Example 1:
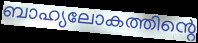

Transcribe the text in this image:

ബാഹ്യലോകത്തിന്റെ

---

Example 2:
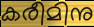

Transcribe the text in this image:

കരീമിനു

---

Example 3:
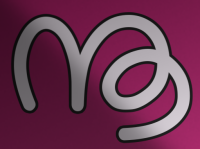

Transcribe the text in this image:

നൂ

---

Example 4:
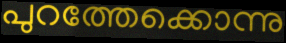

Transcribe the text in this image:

പുറത്തേക്കൊന്നു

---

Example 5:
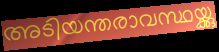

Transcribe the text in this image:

അടിയന്തരാവസ്ഥയ്ക്കു